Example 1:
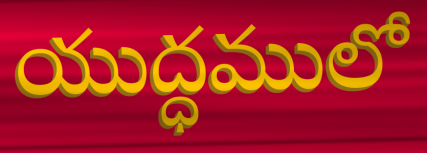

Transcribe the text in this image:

యుద్ధములో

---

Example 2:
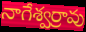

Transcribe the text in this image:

నాగేశ్వర్రావు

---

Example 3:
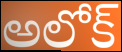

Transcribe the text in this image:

అలోక్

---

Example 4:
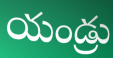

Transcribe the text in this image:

యండ్రు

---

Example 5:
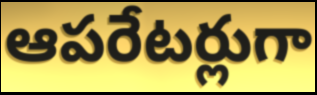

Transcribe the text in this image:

ఆపరేటర్లుగా